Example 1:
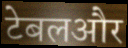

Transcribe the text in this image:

टेबलऔर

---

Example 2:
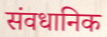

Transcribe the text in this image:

संवधानिक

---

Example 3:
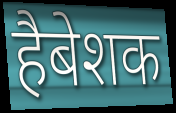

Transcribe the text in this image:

हैबेशक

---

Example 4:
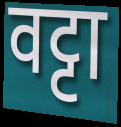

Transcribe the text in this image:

वट्टा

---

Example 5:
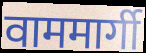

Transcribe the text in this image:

वाममार्गी